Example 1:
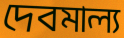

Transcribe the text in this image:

দেবমাল্য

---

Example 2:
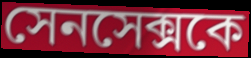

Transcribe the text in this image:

সেনসেক্সকে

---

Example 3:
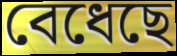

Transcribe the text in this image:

বেধেছে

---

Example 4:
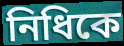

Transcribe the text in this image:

নিধিকে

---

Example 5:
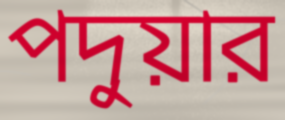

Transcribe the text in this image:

পদুয়ার